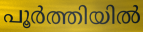
പൂർത്തിയിൽ